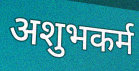
अशुभकर्म